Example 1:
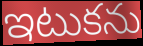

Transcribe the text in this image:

ఇటుకను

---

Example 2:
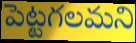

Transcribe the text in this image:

పెట్టగలమని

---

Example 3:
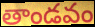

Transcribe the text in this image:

తాండవం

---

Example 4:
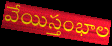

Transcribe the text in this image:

వేయిస్తంభాల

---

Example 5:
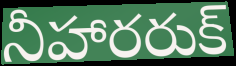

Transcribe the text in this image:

నీహారరుక్